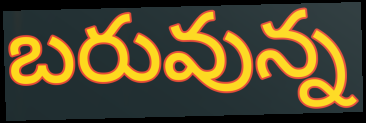
బరువున్న